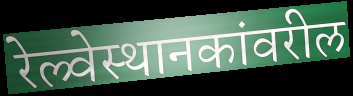
रेल्वेस्थानकांवरील